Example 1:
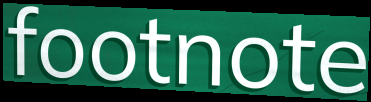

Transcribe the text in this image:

footnote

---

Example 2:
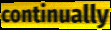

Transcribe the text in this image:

continually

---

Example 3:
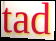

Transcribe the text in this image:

tad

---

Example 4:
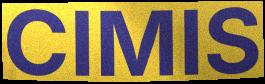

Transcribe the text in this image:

CIMIS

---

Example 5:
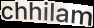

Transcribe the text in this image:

chhilam